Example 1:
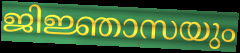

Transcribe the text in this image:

ജിജ്ഞാസയും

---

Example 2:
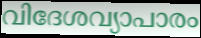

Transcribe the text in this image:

വിദേശവ്യാപാരം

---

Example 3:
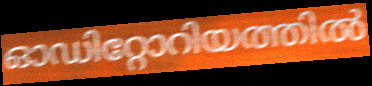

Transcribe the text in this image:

ഓഡിറ്റോറിയത്തിൽ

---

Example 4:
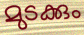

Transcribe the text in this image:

മുടക്കും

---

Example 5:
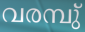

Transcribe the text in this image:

വരമ്പു്